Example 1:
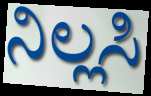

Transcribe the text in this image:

ನಿಲ್ಲಸಿ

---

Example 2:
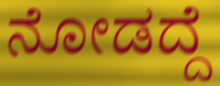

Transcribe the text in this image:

ನೋಡದ್ದೆ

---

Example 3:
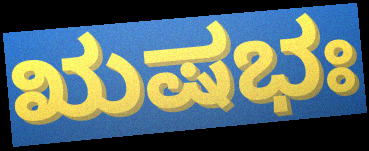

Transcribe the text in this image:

ಋಷಭಃ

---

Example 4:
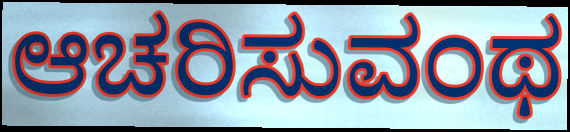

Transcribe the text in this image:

ಆಚರಿಸುವಂಥ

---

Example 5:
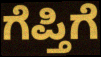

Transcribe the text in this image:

ಗೆಪ್ತಿಗೆ